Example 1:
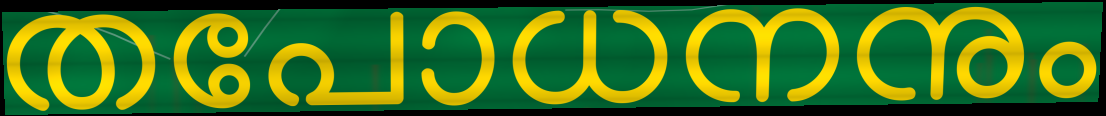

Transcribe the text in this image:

തപോധനനും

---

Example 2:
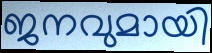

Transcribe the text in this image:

ജനവുമായി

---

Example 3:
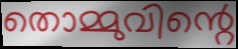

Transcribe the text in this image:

തൊമ്മുവിന്റെ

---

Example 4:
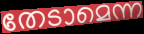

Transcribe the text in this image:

തേടാമെന്ന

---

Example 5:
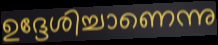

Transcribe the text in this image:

ഉദ്ദേശിച്ചാണെന്നു